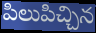
పిలుపిచ్చిన